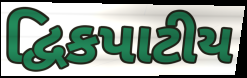
દ્વિકપાટીય